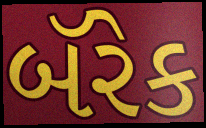
બૅરેક